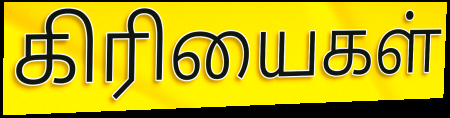
கிரியைகள்